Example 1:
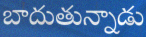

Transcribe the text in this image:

బాదుతున్నాడు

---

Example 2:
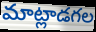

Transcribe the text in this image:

మాట్లాడగల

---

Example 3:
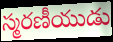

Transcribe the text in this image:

స్మరణీయుడు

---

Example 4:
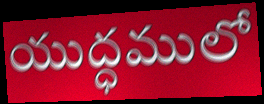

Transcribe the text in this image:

యుద్ధములో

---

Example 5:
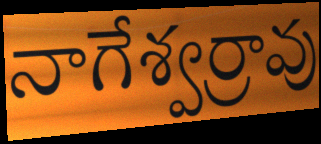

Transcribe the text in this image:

నాగేశ్వర్రావు